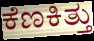
ಕೆಣಕಿತ್ತು